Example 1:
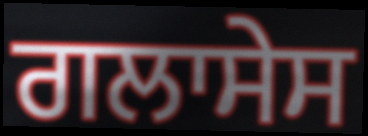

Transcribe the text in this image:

ਗਲਾਸੇਸ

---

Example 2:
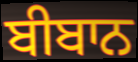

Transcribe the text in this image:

ਬੀਬਾਨ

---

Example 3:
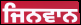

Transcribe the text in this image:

ਜਿਨਵਾਨ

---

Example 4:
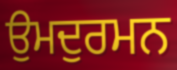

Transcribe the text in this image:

ਉਮਦੁਰਮਨ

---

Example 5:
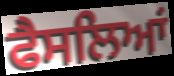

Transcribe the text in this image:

ਫੈਸਲਿਆਂ